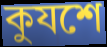
কুযশে